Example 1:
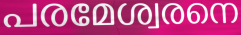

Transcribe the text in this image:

പരമേശ്വരനെ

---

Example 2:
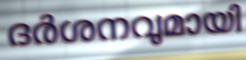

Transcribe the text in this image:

ദർശനവുമായി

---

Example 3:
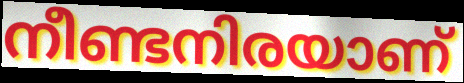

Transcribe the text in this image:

നീണ്ടനിരയാണ്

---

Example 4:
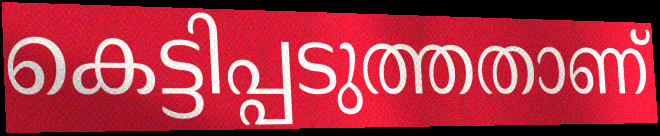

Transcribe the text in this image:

കെട്ടിപ്പടുത്തതാണ്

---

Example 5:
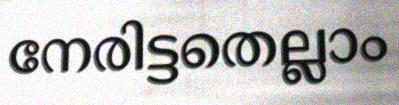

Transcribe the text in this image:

നേരിട്ടതെല്ലാം